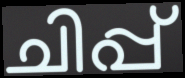
ചിപ്പ്